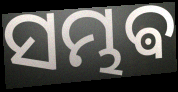
ସମ୍ଭଵ